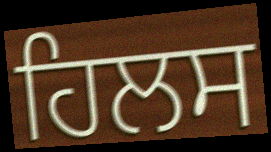
ਹਿਲਸ